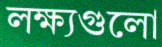
লক্ষ্যগুলো